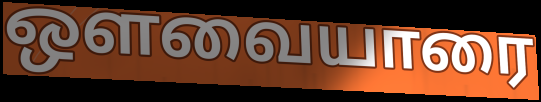
ஔவையாரை